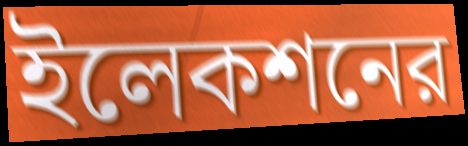
ইলেকশনের